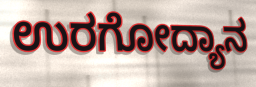
ಉರಗೋದ್ಯಾನ